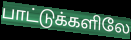
பாட்டுக்களிலே